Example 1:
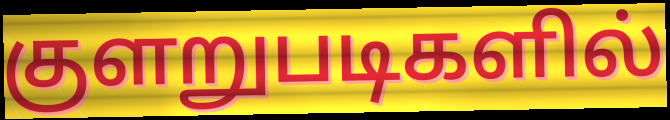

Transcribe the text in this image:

குளறுபடிகளில்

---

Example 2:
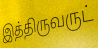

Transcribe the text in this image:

இத்திருவருட்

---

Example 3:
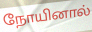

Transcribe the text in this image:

நோயினால்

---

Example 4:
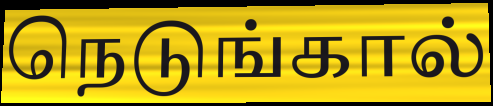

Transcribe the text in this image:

நெடுங்கால்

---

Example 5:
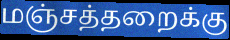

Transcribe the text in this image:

மஞ்சத்தறைக்கு